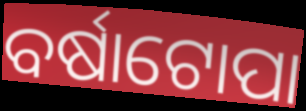
ବର୍ଷାଟୋପା